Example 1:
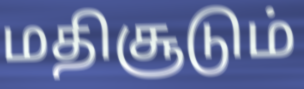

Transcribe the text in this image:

மதிசூடும்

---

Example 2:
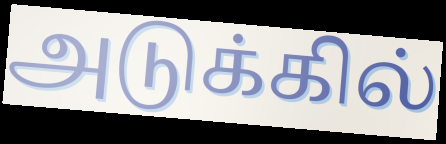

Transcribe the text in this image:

அடுக்கில்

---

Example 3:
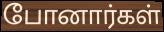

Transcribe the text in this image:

போனார்கள்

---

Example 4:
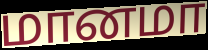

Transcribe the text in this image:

மானமா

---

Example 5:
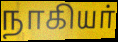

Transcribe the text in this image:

நாகியர்